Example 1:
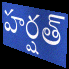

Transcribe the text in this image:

హర్షత్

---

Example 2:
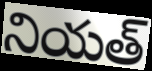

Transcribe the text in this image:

నియత్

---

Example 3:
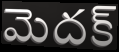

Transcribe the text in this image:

మెదక్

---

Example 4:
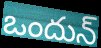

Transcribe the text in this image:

ఒందున్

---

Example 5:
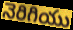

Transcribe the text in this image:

నెరిగియు